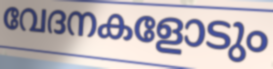
വേദനകളോടും